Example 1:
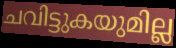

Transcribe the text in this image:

ചവിട്ടുകയുമില്ല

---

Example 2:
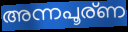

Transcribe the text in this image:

അന്നപൂര്ണ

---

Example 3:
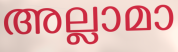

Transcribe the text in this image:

അല്ലാമാ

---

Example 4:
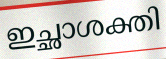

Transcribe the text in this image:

ഇച്ഛാശക്തി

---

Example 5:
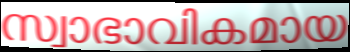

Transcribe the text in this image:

സ്വാഭാവികമായ